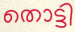
തൊട്ടി